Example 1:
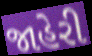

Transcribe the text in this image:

જાહેરી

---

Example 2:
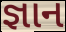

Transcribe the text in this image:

જ્ઞાન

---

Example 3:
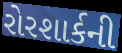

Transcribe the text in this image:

રોરશાર્કની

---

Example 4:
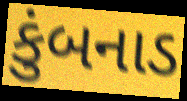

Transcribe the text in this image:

કુંબનાડ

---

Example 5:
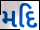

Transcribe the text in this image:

મદિ